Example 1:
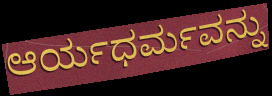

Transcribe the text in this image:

ಆರ್ಯಧರ್ಮವನ್ನು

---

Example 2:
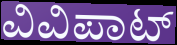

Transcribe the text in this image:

ವಿವಿಪಾಟ್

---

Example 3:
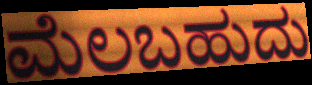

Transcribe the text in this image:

ಮೆಲಬಹುದು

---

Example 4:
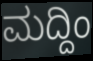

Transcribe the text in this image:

ಮದ್ದಿಂ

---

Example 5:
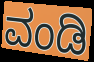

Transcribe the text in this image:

ವಂಡಿ